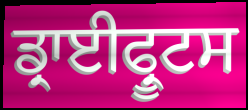
ਡ੍ਰਾਈਫ੍ਰੂਟਸ